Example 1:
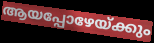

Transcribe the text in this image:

ആയപ്പോഴേയ്ക്കും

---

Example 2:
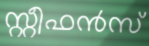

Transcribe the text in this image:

സ്റ്റീഫൻസ്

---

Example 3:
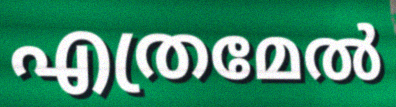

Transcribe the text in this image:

എത്രമേൽ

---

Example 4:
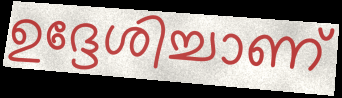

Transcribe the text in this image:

ഉദ്ദേശിച്ചാണ്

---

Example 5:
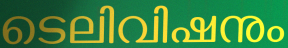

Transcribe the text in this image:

ടെലിവിഷനും